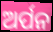
ଅର୍ପନ